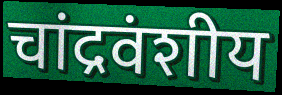
चांद्रवंशीय